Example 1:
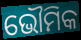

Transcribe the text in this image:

ଭୌମିକ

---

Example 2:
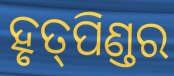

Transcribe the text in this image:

ହୃତ୍‌ପିଣ୍ଡର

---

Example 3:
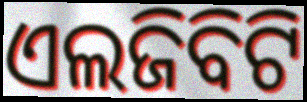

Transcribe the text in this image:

ଏଲଜିବିଟି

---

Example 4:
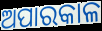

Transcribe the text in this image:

ଅପାରକାଳ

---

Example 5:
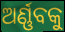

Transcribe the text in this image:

ଅର୍ଣ୍ଣବକୁ